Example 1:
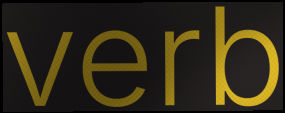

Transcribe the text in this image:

verb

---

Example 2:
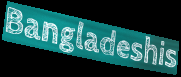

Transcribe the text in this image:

Bangladeshis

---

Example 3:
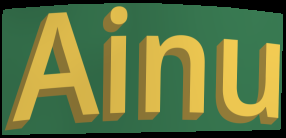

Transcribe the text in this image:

Ainu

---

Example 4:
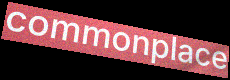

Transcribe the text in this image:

commonplace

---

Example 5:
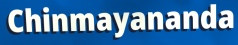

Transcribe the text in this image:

Chinmayananda